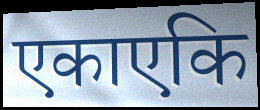
एकाएकि